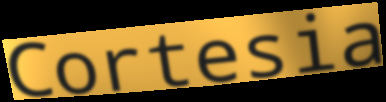
Cortesia